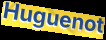
Huguenot